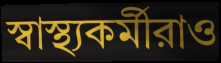
স্বাস্থ্যকর্মীরাও